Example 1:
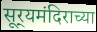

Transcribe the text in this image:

सूर्यमंदिराच्या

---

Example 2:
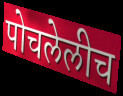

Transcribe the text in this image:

पोचलेलीच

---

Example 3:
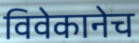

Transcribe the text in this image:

विवेकानेच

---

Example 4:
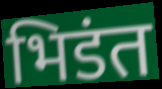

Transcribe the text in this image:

भिडंत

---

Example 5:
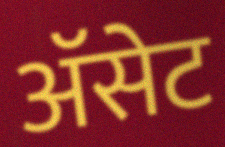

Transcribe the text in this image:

ॲसेट